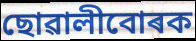
ছোৱালীবোৰক